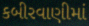
કબીરવાણીમાં